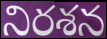
నిరశన